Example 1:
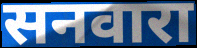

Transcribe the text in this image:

सनवारा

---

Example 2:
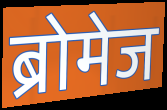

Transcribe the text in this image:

ब्रोमेज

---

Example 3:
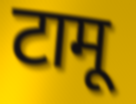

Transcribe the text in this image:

टामू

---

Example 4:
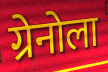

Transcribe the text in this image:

ग्रेनोला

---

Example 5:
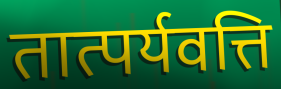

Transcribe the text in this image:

तात्पर्यवत्ति